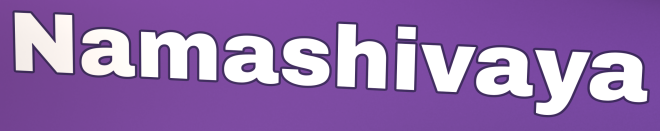
Namashivaya